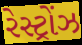
રેસ્ટ્રોંઝ